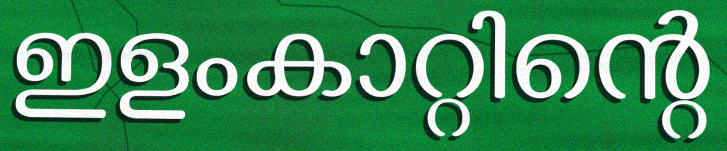
ഇളംകാറ്റിന്റെ